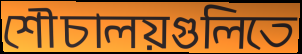
শৌচালয়গুলিতে